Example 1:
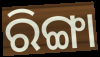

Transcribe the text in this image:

ରିଙ୍ଗା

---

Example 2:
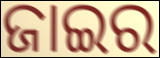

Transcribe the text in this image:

ଜାଇର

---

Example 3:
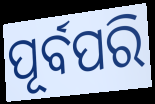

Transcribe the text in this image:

ପୂର୍ବପରି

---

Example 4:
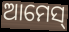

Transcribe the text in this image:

ଆମେସ୍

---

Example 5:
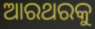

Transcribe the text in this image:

ଆରଥରକୁ